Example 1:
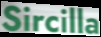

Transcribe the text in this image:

Sircilla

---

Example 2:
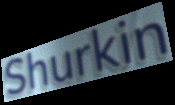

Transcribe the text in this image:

Shurkin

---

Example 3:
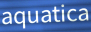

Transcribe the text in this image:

aquatica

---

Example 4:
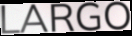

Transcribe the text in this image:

LARGO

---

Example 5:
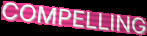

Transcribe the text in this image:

COMPELLING